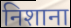
निशाना